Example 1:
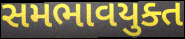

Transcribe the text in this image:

સમભાવયુક્ત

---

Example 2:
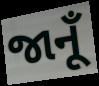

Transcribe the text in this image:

જાનૂઁ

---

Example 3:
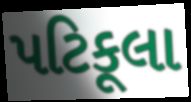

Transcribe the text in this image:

પટિકૂલા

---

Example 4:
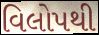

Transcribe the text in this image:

વિલોપથી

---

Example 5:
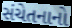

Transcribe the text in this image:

સંચેતનાનો